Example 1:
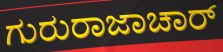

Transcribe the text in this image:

ಗುರುರಾಜಾಚಾರ್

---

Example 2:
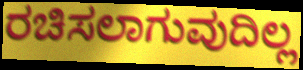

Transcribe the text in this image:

ರಚಿಸಲಾಗುವುದಿಲ್ಲ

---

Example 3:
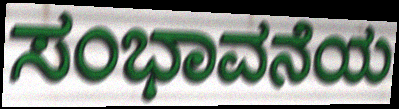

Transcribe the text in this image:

ಸಂಭಾವನೆಯ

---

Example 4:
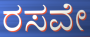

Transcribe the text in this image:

ರಸವೇ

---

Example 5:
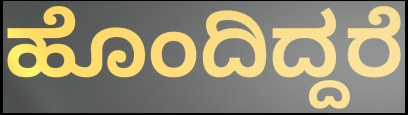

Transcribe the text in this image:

ಹೊಂದಿದ್ದರೆ